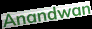
Anandwan